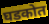
घडकोत